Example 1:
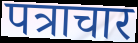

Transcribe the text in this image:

पत्राचार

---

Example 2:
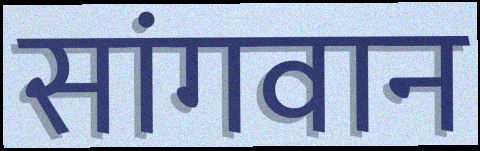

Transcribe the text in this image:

सांगवान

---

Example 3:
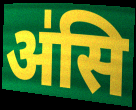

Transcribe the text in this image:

अ॑सि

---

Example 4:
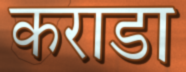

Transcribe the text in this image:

कराडा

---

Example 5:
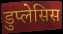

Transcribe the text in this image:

डुप्लेसिस